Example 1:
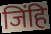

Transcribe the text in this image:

जिंहि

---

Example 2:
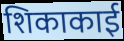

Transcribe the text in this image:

शिकाकाई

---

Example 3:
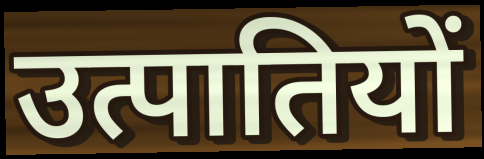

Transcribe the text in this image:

उत्पातियों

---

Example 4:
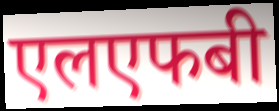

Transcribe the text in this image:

एलएफबी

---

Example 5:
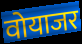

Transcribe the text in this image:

वोयाजर